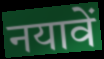
नयावें